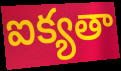
ఐక్యతా